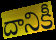
దానికీ